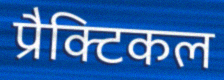
प्रैक्टिकल